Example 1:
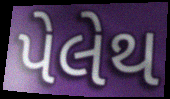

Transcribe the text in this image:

પેલેથ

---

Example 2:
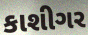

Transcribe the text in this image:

કાશીગર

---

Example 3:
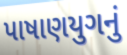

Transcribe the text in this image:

પાષાણયુગનું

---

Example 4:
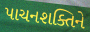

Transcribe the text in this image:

પાચનશક્તિને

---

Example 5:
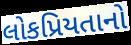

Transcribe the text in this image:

લોકપ્રિયતાનો